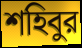
শহিবুর